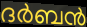
ദർബൻ